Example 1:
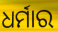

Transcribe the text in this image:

ଧର୍ମାର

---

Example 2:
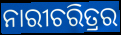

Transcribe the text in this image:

ନାରୀଚରିତ୍ରର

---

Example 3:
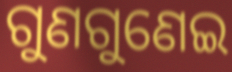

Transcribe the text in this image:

ଗୁଣଗୁଣେଇ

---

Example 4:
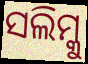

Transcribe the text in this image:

ସଲିମ୍କୁ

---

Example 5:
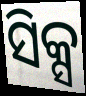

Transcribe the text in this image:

ସିକ୍ସ